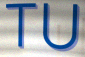
TU